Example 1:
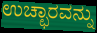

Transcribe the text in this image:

ಉಚ್ಛಾರವನ್ನು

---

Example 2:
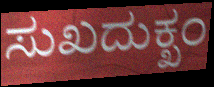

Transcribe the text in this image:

ಸುಖದುಕ್ಖಂ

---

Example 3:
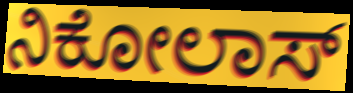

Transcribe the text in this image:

ನಿಕೋಲಾಸ್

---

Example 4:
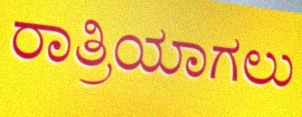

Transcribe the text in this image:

ರಾತ್ರಿಯಾಗಲು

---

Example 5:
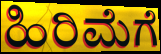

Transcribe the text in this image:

ಹಿರಿಮೆಗೆ